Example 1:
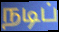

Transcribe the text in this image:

நடிப்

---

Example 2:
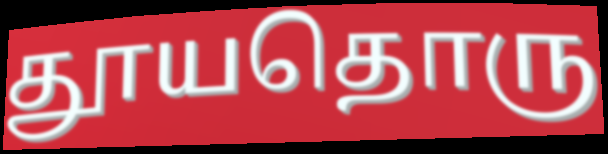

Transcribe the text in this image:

தூயதொரு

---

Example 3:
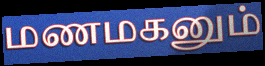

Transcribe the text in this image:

மணமகனும்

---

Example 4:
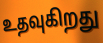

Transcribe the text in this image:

உதவுகிறது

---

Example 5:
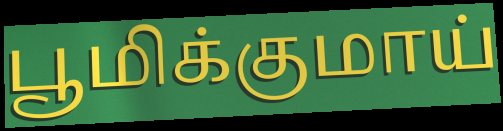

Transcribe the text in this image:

பூமிக்குமாய்